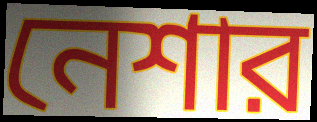
নেশার